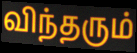
விந்தரும்